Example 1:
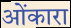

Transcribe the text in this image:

ओंकारा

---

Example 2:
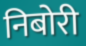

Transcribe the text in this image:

निबोरी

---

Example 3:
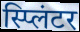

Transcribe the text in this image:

स्प्लिंटर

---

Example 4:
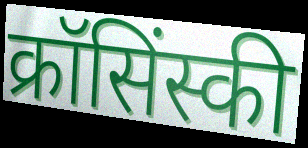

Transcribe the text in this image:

क्रॉसिंस्की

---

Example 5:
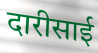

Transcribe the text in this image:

दारीसाई